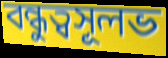
বন্ধুত্বসূলভ